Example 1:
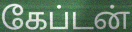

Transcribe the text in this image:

கேப்டன்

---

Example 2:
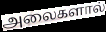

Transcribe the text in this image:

அலைகளால்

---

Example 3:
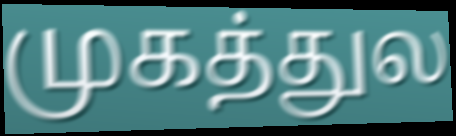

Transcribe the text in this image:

முகத்துல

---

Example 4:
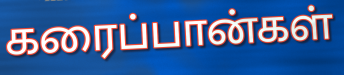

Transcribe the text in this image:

கரைப்பான்கள்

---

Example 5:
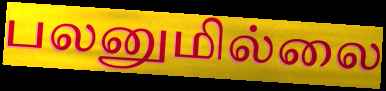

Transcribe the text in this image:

பலனுமில்லை